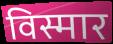
विस्मार